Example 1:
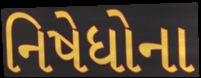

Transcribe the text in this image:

નિષેધોના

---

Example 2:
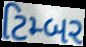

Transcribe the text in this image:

ટિમ્બર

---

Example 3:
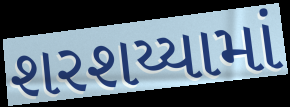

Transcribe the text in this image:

શરશય્યામાં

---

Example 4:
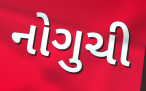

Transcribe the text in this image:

નોગુચી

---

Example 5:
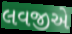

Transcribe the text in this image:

લવજીએ